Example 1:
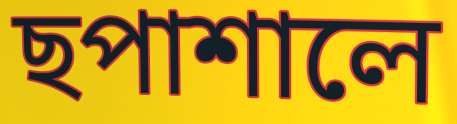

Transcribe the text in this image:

ছপাশালে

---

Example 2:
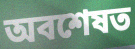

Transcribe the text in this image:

অবশেষত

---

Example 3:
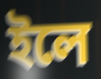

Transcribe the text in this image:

ইলে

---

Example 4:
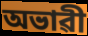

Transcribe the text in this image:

অভাৱী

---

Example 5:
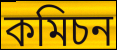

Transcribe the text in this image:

কমিচন